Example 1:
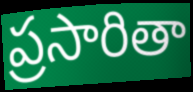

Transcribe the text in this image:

ప్రసారితా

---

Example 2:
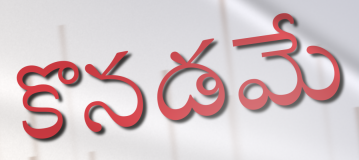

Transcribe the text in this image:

కొనడమే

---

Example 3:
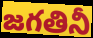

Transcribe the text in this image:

జగతినీ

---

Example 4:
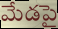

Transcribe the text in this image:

మేడపై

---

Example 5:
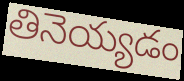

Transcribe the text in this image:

తినెయ్యడం